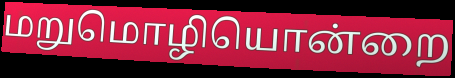
மறுமொழியொன்றை